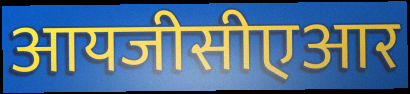
आयजीसीएआर